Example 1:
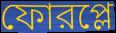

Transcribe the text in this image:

ফোরপ্লে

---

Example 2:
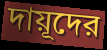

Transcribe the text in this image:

দায়ূদের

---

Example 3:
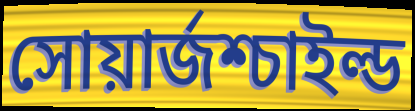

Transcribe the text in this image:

সোয়ার্জশ্চাইল্ড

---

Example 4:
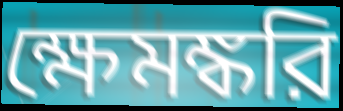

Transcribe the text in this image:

ক্ষেমঙ্করি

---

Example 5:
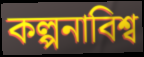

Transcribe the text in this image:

কল্পনাবিশ্ব